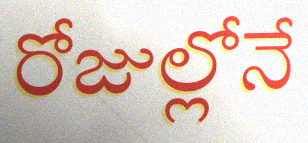
రోజుల్లోనే